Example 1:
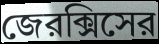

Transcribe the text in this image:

জেরক্সিসের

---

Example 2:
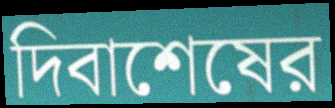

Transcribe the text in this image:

দিবাশেষের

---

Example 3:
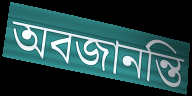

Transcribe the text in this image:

অবজানন্তি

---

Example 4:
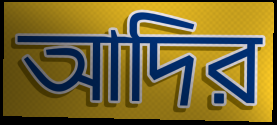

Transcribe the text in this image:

আদির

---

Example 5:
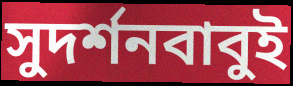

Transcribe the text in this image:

সুদর্শনবাবুই